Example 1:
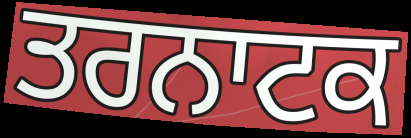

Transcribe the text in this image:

ਤਰਨਾਟਕ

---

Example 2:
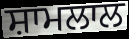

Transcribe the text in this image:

ਸ਼ਾਮਲਾਲ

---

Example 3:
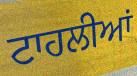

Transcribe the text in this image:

ਟਾਹਲੀਆਂ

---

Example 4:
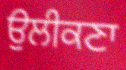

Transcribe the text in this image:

ਉਲੀਕਣਾ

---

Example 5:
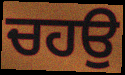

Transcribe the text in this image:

ਚਹਉ